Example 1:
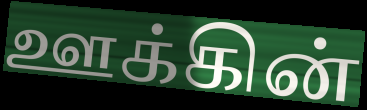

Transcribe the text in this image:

ஊக்கின்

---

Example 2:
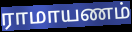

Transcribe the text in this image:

ராமாயணம்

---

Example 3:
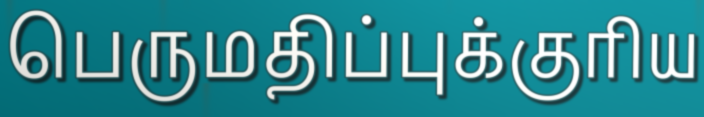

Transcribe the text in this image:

பெருமதிப்புக்குரிய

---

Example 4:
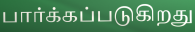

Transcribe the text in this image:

பார்க்கப்படுகிறது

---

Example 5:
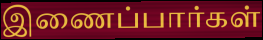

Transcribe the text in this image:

இணைப்பார்கள்